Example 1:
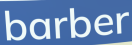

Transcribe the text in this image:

barber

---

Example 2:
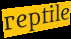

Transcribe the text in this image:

reptile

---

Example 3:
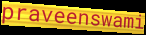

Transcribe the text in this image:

praveenswami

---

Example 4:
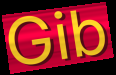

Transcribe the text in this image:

Gib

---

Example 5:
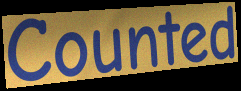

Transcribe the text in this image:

Counted